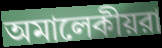
অমালেকীয়রা